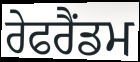
ਰੇਫਰੈਂਡਮ